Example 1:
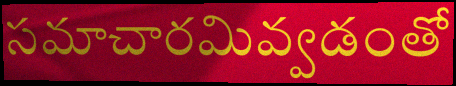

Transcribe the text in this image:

సమాచారమివ్వడంతో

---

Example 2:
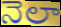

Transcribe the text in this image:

నెలా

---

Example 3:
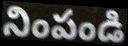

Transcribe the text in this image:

నింపండి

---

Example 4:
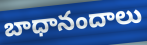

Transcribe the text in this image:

బాధానందాలు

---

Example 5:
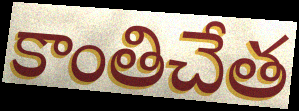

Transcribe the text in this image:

కాంతిచేత